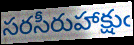
సరసీరుహాక్షుఁ